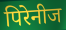
पिरेनीज